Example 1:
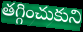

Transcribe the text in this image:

తగ్గించుకుని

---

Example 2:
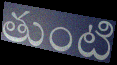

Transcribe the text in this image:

తుంటి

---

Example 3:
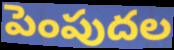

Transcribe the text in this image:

పెంపుదల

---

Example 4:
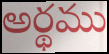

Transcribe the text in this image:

అర్థము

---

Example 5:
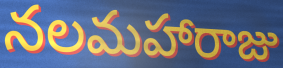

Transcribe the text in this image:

నలమహారాజు